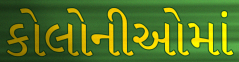
કોલોનીઓમાં